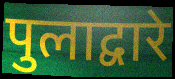
पुलाद्वारे